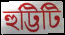
হুট্টিটি